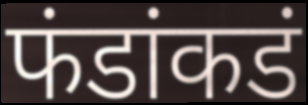
फंडांकडं